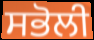
ਸਭੋਲੀ